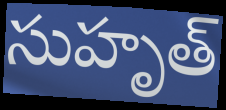
సుహృత్